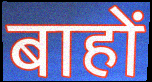
बाहों